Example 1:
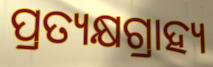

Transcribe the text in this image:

ପ୍ରତ୍ୟକ୍ଷଗ୍ରାହ୍ୟ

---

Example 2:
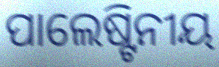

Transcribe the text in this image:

ପାଲେଷ୍ଟିନୀୟ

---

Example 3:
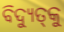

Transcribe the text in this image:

ବିଦ୍ୟୁତ୍‌କୁ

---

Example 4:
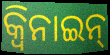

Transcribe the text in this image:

କ୍ୱିନାଇନ୍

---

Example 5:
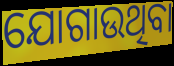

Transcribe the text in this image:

ଯୋଗାଉଥିବା